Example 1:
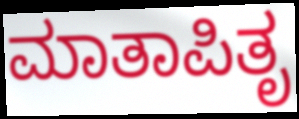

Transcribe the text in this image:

ಮಾತಾಪಿತೃ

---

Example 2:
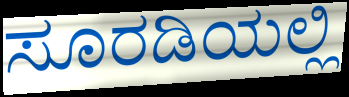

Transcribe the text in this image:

ಸೂರಡಿಯಲ್ಲಿ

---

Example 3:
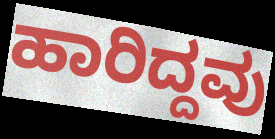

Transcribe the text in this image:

ಹಾರಿದ್ದವು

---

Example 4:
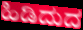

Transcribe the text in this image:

ಹಿಡಿದುದ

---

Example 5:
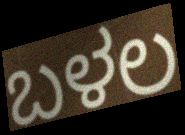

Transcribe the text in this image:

ಬಳಲ